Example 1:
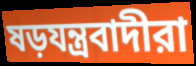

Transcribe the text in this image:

ষড়যন্ত্রবাদীরা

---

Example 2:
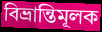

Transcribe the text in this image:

বিভ্রান্তিমূলক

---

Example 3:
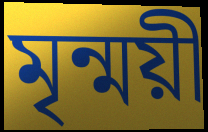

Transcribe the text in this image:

মৃন্ময়ী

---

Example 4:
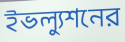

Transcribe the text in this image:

ইভল্যুশনের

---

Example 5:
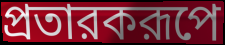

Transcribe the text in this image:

প্রতারকরূপে